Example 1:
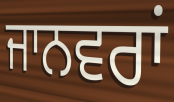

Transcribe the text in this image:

ਜਾਨਵਰਾਂ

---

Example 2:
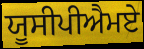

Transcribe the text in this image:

ਯੂਸੀਪੀਐਮਏ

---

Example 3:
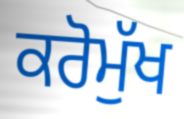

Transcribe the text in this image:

ਕਰੋਮੁੱਖ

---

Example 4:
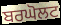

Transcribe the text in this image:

ਬਰਘੋਲਟ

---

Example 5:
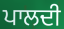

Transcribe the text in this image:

ਪਾਲਦੀ